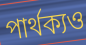
পার্থক্যও